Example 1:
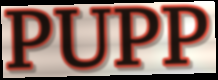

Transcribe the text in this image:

PUPP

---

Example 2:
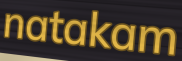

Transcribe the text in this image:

natakam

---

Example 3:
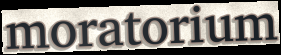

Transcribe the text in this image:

moratorium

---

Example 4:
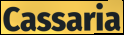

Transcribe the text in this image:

Cassaria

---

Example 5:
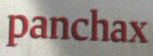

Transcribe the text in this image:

panchax